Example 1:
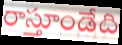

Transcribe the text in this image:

రాస్తూండేది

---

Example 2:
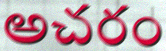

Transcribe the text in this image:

అచరం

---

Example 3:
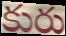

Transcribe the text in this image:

కురు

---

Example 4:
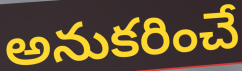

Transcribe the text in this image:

అనుకరించే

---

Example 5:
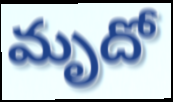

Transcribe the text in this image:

మృదో